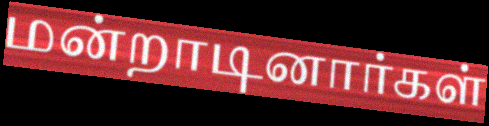
மன்றாடினார்கள்